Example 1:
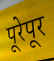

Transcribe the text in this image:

पूरेपूर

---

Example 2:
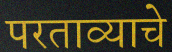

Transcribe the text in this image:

परताव्याचे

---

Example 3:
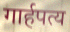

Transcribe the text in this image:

गार्हपत्य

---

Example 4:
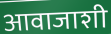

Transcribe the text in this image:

आवाजाशी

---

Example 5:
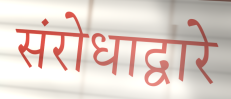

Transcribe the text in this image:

संरोधाद्वारे